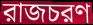
রাজচরণ